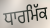
ਧਾਰਮਿੱਕ